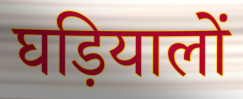
घड़ियालों